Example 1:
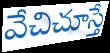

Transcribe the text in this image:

వేచిచూస్తే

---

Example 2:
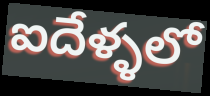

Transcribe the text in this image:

ఐదేళ్ళలో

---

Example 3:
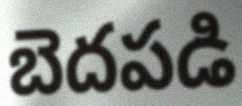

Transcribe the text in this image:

బెదపడి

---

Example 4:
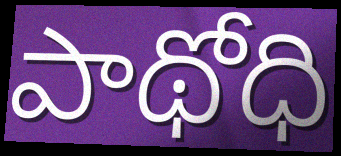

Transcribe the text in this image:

పాథోధి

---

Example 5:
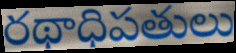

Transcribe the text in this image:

రథాధిపతులు